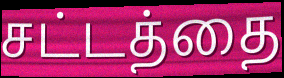
சட்டத்தை